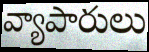
వ్యాపారులు